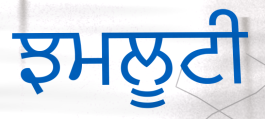
ਝਮਲੂਟੀ